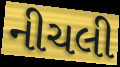
નીચલી